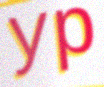
yp